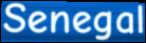
Senegal